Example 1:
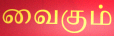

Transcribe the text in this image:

வைகும்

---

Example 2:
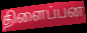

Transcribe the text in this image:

திளைப்பன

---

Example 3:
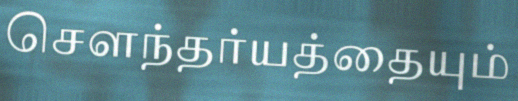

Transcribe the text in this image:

சௌந்தர்யத்தையும்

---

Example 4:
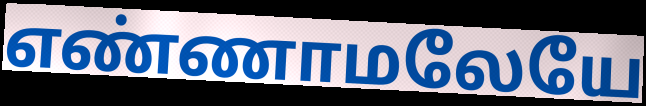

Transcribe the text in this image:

எண்ணாமலேயே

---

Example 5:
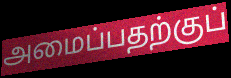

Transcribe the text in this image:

அமைப்பதற்குப்